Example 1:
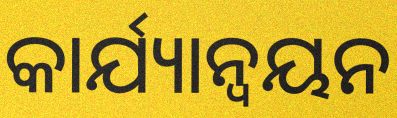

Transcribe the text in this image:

କାର୍ଯ୍ୟାନ୍ୱୟନ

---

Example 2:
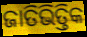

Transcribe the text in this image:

ଜାତିଭିତ୍ତିକ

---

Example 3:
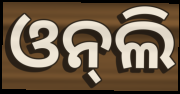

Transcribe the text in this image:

ଓନ୍‍ଲି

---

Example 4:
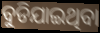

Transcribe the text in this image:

ବୁଡିଯାଇଥିବା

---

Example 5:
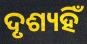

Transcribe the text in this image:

ଦୃଶ୍ୟହିଁ